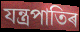
যন্ত্ৰপাতিৰ